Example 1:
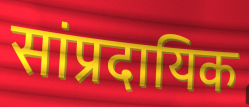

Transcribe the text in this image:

सांप्रदायिक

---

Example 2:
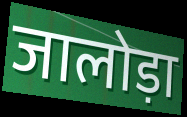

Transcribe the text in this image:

जालोड़ा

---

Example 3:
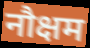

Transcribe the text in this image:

नौक्षम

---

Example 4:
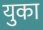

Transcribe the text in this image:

युका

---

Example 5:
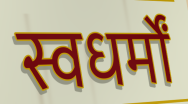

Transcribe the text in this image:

स्वधर्मों